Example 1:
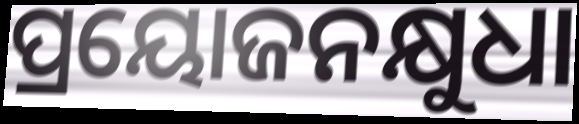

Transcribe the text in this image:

ପ୍ରୟୋଜନକ୍ଷୁଧା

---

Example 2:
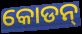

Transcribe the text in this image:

କୋଡନ୍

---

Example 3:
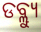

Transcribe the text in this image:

ଡବ୍ଲ୍ୟୁ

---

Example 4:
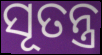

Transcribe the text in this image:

ସୂତନ୍ତ୍ର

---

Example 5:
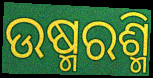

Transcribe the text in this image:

ଉଷ୍ମରଶ୍ମି